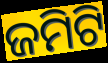
ଜମିଟି